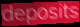
deposits